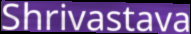
Shrivastava